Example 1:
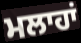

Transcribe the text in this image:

ਮਲਾਹਾਂ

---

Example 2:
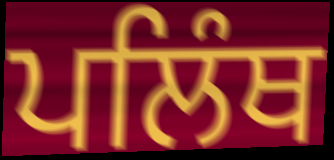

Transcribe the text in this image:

ਪਲਿੰਥ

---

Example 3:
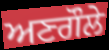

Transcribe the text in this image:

ਅਣਗੌਲੇ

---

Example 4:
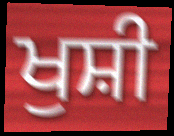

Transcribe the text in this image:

ਖੁਸ਼ੀ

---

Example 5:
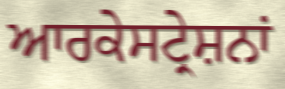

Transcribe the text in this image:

ਆਰਕੇਸਟ੍ਰੇਸ਼ਨਾਂ